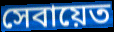
সেবায়েত